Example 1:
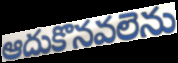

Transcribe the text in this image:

ఆదుకొనవలెను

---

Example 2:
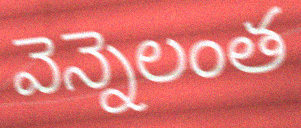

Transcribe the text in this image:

వెన్నెలంత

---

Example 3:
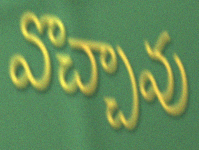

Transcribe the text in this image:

వొచ్చావు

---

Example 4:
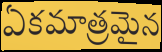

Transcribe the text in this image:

ఏకమాత్రమైన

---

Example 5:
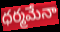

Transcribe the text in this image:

ధర్మమేనా